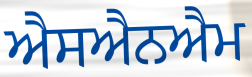
ਐਸਐਨਐਮ